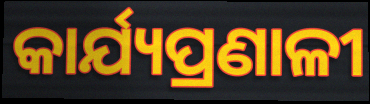
କାର୍ଯ୍ୟପ୍ରଣାଳୀ